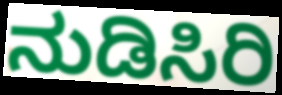
ನುಡಿಸಿರಿ